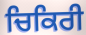
ਚਿਕਿਰੀ